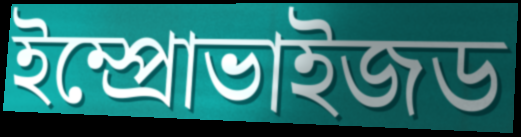
ইম্প্রোভাইজড